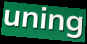
uning